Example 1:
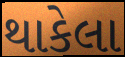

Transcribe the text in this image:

થાકેલા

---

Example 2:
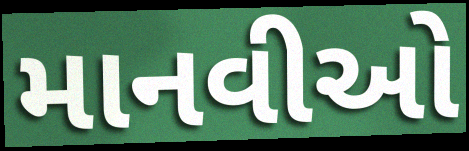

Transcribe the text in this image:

માનવીઓ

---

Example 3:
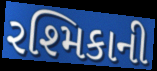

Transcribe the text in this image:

રશ્મિકાની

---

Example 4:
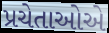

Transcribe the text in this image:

પ્રચેતાઓએ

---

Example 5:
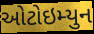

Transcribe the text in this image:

ઓટોઇમ્યુન